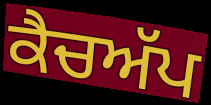
ਕੈਚਅੱਪ